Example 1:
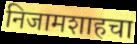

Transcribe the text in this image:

निजामशाहचा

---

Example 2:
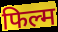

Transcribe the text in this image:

फिल्म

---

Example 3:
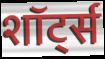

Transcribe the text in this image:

शॉर्ट्स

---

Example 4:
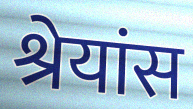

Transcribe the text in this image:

श्रेयांस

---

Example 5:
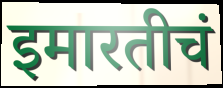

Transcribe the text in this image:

इमारतीचं